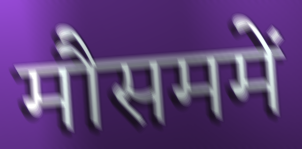
मौसममें